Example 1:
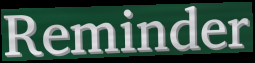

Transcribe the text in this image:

Reminder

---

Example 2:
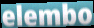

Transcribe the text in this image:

elembo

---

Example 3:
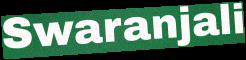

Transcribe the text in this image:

Swaranjali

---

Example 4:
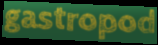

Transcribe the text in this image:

gastropod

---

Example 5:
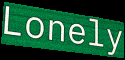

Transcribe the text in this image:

Lonely